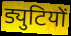
ड्युटियों